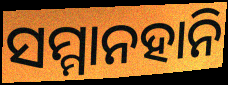
ସମ୍ମାନହାନି